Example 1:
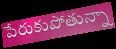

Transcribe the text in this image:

పేరుకుపోతున్నా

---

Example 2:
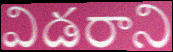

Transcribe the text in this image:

విడరాని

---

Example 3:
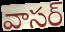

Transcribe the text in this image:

వాసర్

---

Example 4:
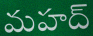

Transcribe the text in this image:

మహద్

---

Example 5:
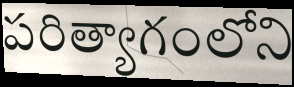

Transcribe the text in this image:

పరిత్యాగంలోని